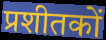
प्रशीतकों